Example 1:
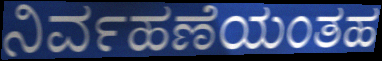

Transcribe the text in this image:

ನಿರ್ವಹಣೆಯಂತಹ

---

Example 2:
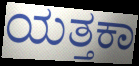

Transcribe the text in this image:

ಯತ್ತಕಾ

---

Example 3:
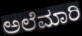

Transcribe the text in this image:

ಅಲೆಮಾರಿ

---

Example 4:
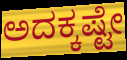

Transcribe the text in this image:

ಅದಕ್ಕಷ್ಟೇ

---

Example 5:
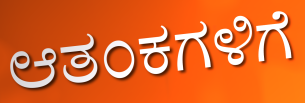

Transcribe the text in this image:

ಆತಂಕಗಳಿಗೆ